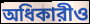
অধিকারীও